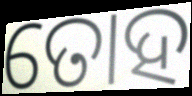
ତୋହ